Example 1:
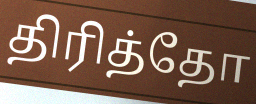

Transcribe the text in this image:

திரித்தோ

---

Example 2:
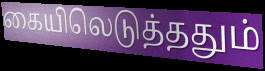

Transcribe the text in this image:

கையிலெடுத்ததும்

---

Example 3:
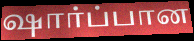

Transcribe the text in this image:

ஷார்ப்பான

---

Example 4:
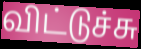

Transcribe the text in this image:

விட்டுச்சு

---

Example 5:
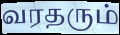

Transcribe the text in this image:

வரதரும்